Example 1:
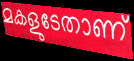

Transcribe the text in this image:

മകളുടേതാണ്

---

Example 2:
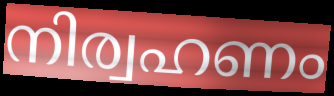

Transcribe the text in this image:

നിര്വഹണം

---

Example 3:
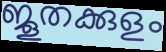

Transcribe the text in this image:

ജൂതക്കുളം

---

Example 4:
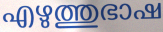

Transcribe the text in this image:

എഴുത്തുഭാഷ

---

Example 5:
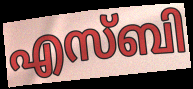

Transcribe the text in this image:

എസ്ബി